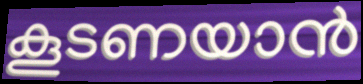
കൂടണയാൻ